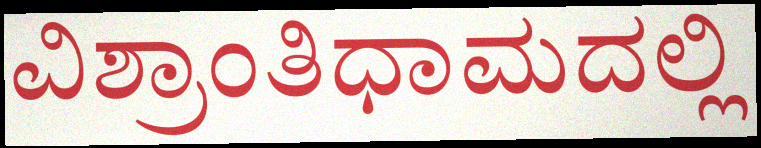
ವಿಶ್ರಾಂತಿಧಾಮದಲ್ಲಿ